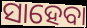
ସାହେବା